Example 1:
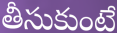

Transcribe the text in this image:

తీసుకుంటే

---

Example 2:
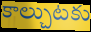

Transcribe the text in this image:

కాల్చుటకు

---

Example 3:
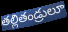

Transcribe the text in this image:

తల్లితండ్రులూ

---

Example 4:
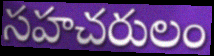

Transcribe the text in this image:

సహచరులం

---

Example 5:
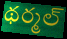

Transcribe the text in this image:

థర్మల్